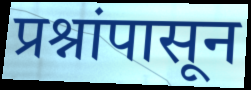
प्रश्नांपासून